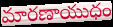
మారణాయుధం